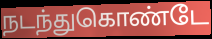
நடந்துகொண்டே